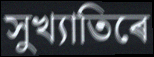
সুখ্যাতিৰে